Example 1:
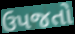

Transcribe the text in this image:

ઉપજતો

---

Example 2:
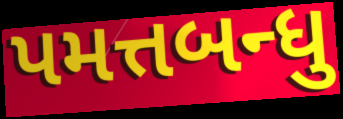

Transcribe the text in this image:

પમત્તબન્ધુ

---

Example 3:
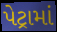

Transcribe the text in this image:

પેટ્રામાં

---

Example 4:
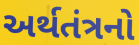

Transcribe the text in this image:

અર્થતંત્રનો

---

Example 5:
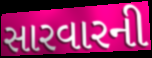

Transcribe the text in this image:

સારવારની